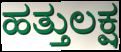
ಹತ್ತುಲಕ್ಷ